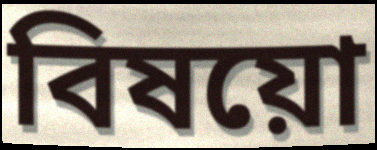
বিষয়ো